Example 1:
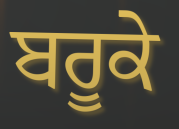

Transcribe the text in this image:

ਬਰੂਕੇ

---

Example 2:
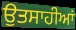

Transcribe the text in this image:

ਉਤਸਾਹੀਆਂ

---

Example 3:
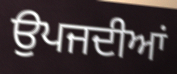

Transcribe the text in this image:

ਉਪਜਦੀਆਂ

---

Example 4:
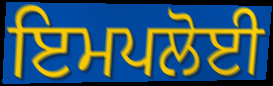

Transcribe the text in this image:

ਇਮਪਲੋਈ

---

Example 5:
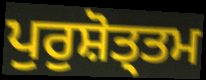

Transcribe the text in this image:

ਪੁਰੁਸ਼ੋਤ੍ਤਮ